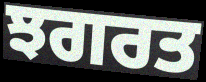
ਝਗਰਤ